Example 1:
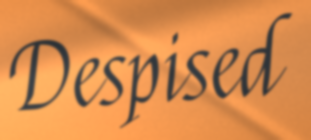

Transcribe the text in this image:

Despised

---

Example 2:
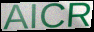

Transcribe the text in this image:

AICR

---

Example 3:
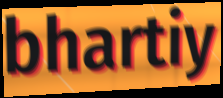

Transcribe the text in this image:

bhartiy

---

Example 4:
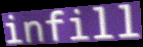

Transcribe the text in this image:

infill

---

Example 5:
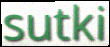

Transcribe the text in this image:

sutki